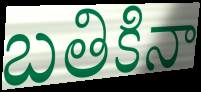
బతికినా